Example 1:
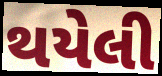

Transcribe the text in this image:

થયેલી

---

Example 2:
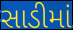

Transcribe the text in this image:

સાડીમાં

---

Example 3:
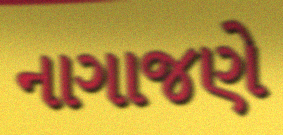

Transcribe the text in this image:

નાગાજણે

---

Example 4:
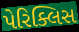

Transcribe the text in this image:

પેરિક્લિસ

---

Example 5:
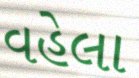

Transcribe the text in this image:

વહેલા